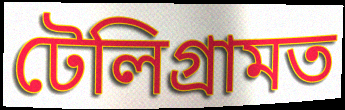
টেলিগ্ৰামত